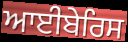
ਆਈਬੇਰਿਸ